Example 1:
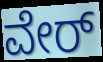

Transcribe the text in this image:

ವೇರ್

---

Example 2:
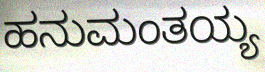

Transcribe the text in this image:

ಹನುಮಂತಯ್ಯ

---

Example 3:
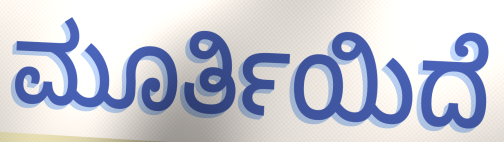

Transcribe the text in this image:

ಮೂರ್ತಿಯಿದೆ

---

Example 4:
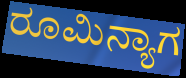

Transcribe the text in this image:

ರೂಮಿನ್ಯಾಗ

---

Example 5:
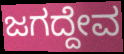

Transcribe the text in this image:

ಜಗದ್ದೇವ